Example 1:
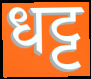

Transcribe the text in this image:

धट्ट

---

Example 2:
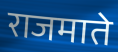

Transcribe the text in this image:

राजमाते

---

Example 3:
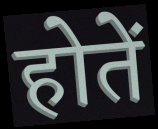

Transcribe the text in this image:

होतें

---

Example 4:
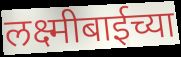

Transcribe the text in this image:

लक्ष्मीबाईच्या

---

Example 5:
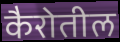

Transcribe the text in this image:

कैरोतील